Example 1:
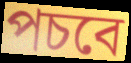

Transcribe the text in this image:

পচবে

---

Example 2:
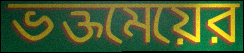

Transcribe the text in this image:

ভক্তমেয়ের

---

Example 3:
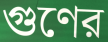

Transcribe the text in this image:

গুণের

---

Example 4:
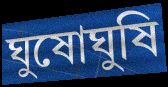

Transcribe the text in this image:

ঘুষোঘুষি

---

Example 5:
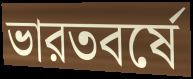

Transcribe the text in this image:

ভারতবর্ষে